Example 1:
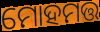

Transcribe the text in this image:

ମୋହମତ୍ତ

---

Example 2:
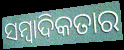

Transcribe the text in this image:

ସମ୍ୱାଦିକତାର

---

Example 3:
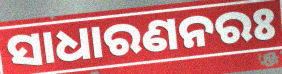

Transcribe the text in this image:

ସାଧାରଣନରଃ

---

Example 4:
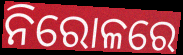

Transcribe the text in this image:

ନିରୋଳରେ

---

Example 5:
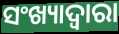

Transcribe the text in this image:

ସଂଖ୍ୟାଦ୍ୱାରା